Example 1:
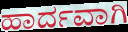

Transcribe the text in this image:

ಹಾರ್ದವಾಗಿ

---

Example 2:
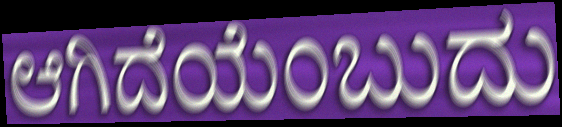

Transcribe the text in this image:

ಆಗಿದೆಯೆಂಬುದು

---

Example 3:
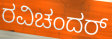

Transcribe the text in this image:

ರವಿಚಂದರ್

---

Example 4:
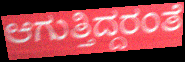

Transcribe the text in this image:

ಆಗುತ್ತಿದ್ದರಂತೆ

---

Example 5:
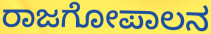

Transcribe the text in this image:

ರಾಜಗೋಪಾಲನ